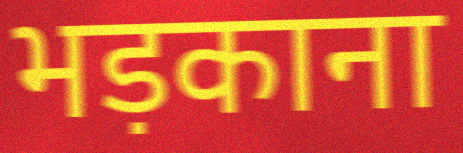
भड़काना